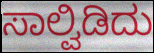
ಸಾಲ್ವಿಡಿದು